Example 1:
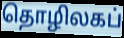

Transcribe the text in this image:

தொழிலகப்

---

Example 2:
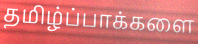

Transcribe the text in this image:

தமிழ்ப்பாக்களை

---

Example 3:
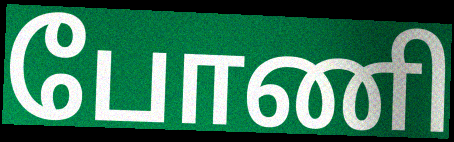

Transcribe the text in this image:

போணி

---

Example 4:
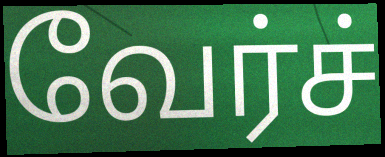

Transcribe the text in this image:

வேர்ச்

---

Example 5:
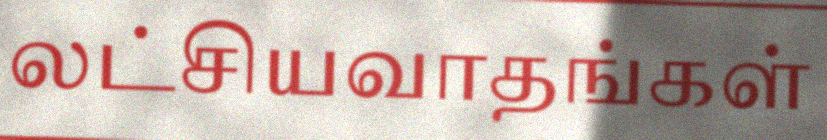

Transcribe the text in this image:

லட்சியவாதங்கள்